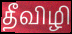
தீவிழி